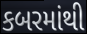
કબરમાંથી